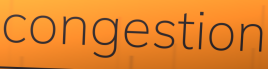
congestion